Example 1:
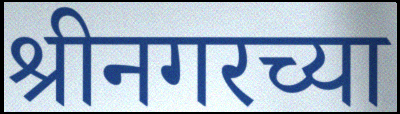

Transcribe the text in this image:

श्रीनगरच्या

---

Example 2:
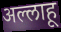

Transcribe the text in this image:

अल्लाहू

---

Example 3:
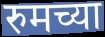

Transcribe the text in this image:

रुमच्या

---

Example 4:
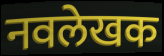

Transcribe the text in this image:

नवलेखक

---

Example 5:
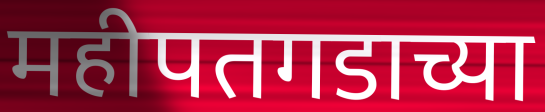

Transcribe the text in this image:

महीपतगडाच्या